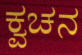
ಕ್ವಚನ